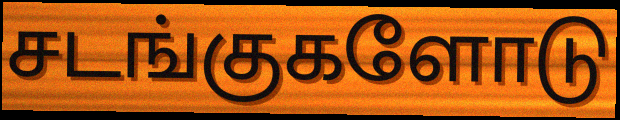
சடங்குகளோடு